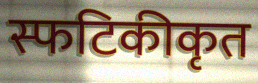
स्फटिकीकृत